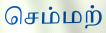
செம்மற்